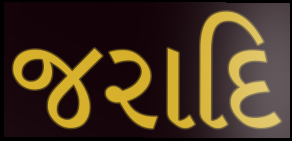
જરાદિ